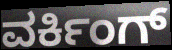
ವರ್ಕಿಂಗ್